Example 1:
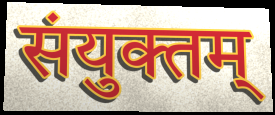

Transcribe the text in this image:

संयुक्तम्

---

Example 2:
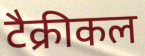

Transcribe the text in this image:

टैक्रीकल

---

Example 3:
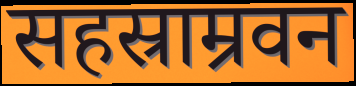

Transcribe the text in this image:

सहस्राम्रवन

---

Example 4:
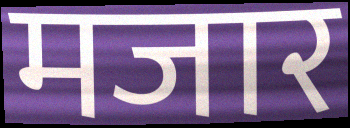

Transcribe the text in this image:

मजार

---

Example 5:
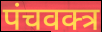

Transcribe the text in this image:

पंचवक्त्र